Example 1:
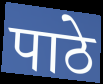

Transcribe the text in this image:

पाठे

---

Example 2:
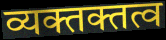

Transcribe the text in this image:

व्यक्तक्तत्व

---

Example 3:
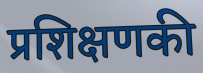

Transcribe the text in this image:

प्रशिक्षणकी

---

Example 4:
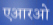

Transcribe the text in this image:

एआरओ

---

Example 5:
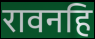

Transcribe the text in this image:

रावनहि